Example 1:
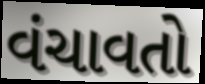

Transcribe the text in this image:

વંચાવતો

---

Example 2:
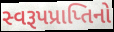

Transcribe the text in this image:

સ્વરૂપપ્રાપ્તિનો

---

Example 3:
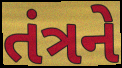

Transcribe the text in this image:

તંત્રને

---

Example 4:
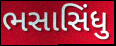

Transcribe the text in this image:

ભસાસિંધુ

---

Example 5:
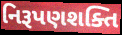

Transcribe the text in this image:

નિરૂપણશક્તિ